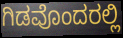
ಗಿಡವೊಂದರಲ್ಲಿ